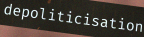
depoliticisation